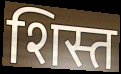
शिस्त